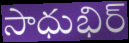
సాధుభిర్